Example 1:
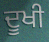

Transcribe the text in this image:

ਦੂਖੀ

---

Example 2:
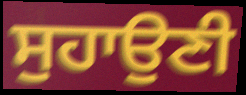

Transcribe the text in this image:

ਸੁਹਾਉਣੀ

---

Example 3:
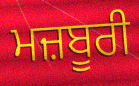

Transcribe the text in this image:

ਮਜ਼ਬੂਰੀ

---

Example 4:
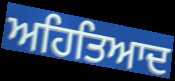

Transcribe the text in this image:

ਅਹਿਤਿਆਦ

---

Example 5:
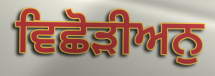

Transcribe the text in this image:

ਵਿਛੋੜੀਅਨੁ